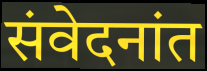
संवेदनांत